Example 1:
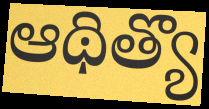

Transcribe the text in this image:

ఆథిత్యొ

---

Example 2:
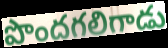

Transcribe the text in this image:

పొందగలిగాడు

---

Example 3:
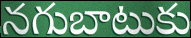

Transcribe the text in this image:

నగుబాటుకు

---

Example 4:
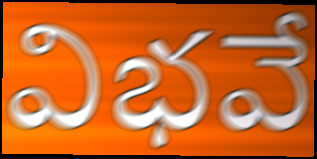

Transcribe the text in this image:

విభవే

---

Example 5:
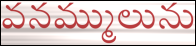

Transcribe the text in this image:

వనమ్ములును